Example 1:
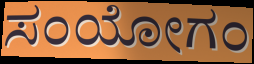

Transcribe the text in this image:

ಸಂಯೋಗಂ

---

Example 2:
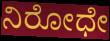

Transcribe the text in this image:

ನಿರೋಧೇ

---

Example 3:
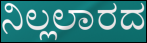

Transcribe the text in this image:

ನಿಲ್ಲಲಾರದ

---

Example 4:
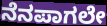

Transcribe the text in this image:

ನೆನಪಾಗಲೇ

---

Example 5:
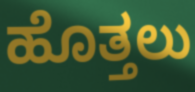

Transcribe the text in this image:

ಹೊತ್ತಲು